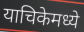
याचिकेमध्ये